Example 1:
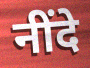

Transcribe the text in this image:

नींदे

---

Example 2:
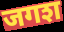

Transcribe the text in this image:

जगश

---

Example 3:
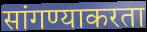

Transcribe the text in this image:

सांगण्याकरता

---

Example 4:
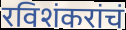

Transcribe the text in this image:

रविशंकरांचं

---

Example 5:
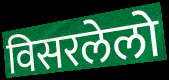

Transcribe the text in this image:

विसरलेलो